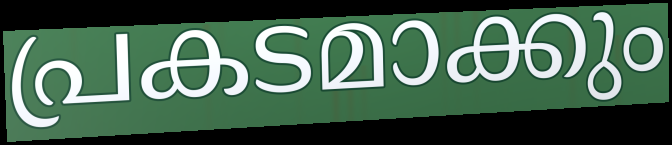
പ്രകടമാക്കും